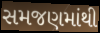
સમજણમાંથી